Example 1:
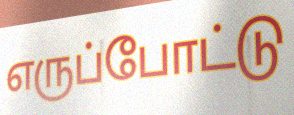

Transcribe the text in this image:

எருப்போட்டு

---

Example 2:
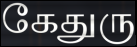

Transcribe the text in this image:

கேதுரு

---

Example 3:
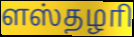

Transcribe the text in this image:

ளஸ்தழரி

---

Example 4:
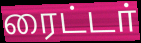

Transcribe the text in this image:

ரைட்டர்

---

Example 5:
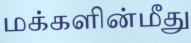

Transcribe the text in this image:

மக்களின்மீது